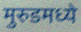
मुरुडमध्ये